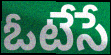
ఓటేసే